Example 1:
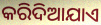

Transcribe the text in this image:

କରିଦିଆଯାଏ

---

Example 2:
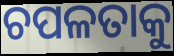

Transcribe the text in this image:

ଚପଳତାକୁ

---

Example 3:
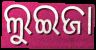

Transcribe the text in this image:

ଲୁଇଜା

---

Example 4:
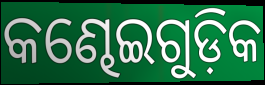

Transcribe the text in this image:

କଣ୍ଢେଇଗୁଡ଼ିକ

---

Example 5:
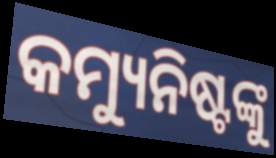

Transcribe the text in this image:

କମ୍ୟୁନିଷ୍ଟଙ୍କୁ